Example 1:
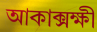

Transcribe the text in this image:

আকাক্সক্ষী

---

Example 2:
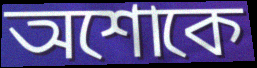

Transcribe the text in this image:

অশোকে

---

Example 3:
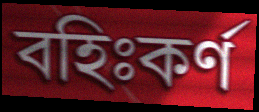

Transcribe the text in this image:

বহিঃকর্ণ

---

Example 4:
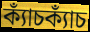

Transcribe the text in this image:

ক্যাঁচক্যাঁচ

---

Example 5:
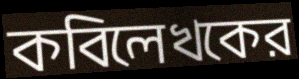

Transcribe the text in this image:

কবিলেখকের